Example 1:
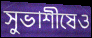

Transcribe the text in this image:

সুভাশীষেও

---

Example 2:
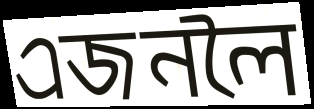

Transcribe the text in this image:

এজনলৈ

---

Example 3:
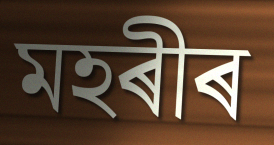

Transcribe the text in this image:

মহৰীৰ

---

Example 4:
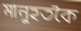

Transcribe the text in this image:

মানুহতকৈ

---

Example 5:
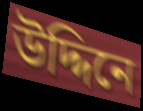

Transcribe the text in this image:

উদ্দিনে